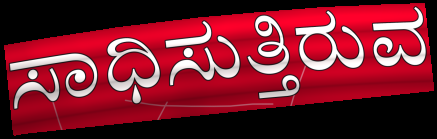
ಸಾಧಿಸುತ್ತಿರುವ